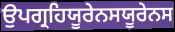
ਉਪਗ੍ਰਹਿਯੂਰੇਨਸਯੂਰੇਨਸ